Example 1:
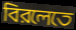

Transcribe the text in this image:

বিরলেতে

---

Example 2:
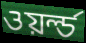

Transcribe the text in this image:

ওয়র্ল্ড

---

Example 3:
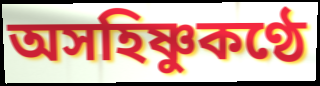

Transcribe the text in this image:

অসহিষ্ণুকণ্ঠে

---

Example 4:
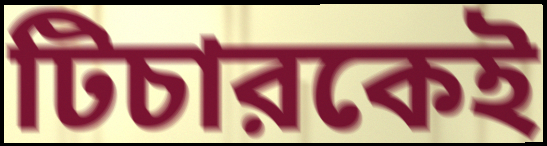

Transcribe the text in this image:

টিচারকেই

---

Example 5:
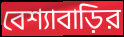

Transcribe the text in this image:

বেশ্যাবাড়ির